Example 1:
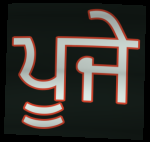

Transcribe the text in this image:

ਪੂਜੇ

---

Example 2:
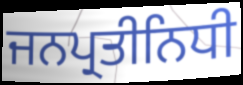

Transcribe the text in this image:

ਜਨਪ੍ਰਤੀਨਿਧੀ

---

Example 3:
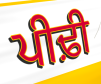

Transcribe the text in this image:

ਪੀਢ਼ੀ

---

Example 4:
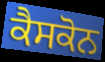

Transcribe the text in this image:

ਕੈਸਕੋਨ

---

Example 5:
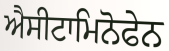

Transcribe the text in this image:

ਐਸੀਟਾਮਿਨੋਫੇਨ